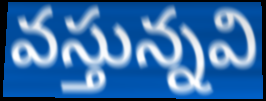
వస్తున్నవి